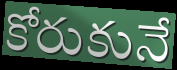
కోరుకునే